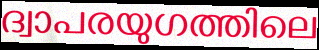
ദ്വാപരയുഗത്തിലെ